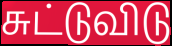
சுட்டுவிடு